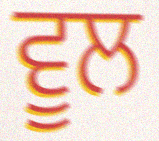
ਵੂਲ